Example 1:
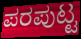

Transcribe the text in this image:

ಪರಪುಟ್ಟ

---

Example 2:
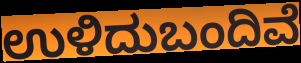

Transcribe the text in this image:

ಉಳಿದುಬಂದಿವೆ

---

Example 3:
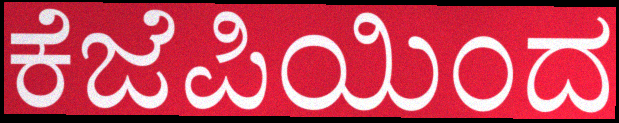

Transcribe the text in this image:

ಕೆಜೆಪಿಯಿಂದ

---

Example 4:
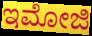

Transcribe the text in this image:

ಇಮೋಜಿ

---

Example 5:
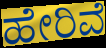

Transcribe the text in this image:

ಹೇರಿವೆ